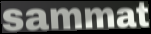
sammat